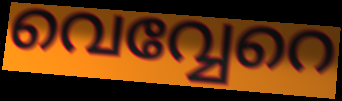
വെവ്വേറെ